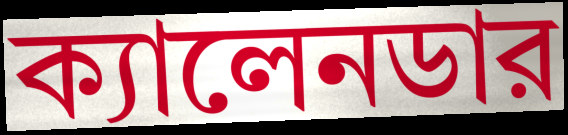
ক্যালেনডার